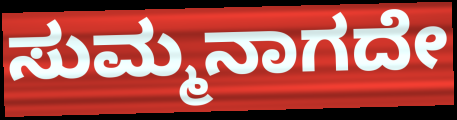
ಸುಮ್ಮನಾಗದೇ